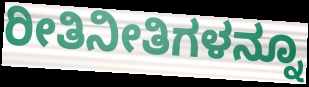
ರೀತಿನೀತಿಗಳನ್ನೂ